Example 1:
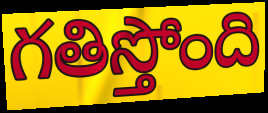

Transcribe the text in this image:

గతిస్తోంది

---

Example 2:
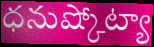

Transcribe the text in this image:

ధనుష్కోట్యా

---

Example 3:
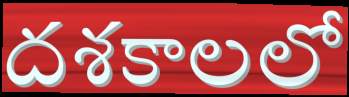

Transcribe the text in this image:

దశకాలలో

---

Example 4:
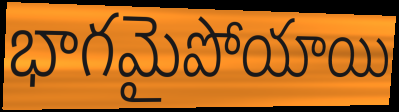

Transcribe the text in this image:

భాగమైపోయాయి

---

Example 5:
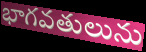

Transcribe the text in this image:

భాగవతులును